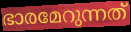
ഭാരമേറുന്നത്